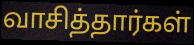
வாசித்தார்கள்